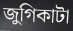
জুগিকাটা